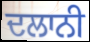
ਦਲਾਨੀ